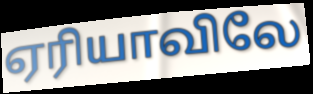
ஏரியாவிலே